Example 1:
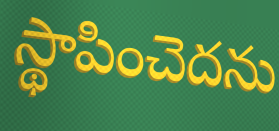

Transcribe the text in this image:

స్థాపించెదను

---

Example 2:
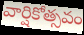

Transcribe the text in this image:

వార్షికోత్సవం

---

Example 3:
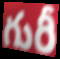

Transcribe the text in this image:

గురీ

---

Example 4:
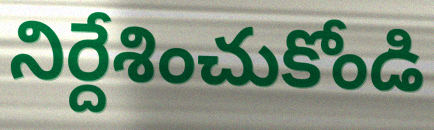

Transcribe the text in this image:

నిర్దేశించుకోండి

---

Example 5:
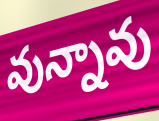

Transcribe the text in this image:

వున్నావు